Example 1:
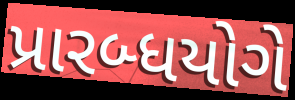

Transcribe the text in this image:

પ્રારબ્ધયોગે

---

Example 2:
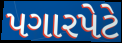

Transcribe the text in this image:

પગારપેટે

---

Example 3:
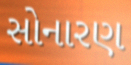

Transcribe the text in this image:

સોનારણ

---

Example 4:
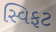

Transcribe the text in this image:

સ્વિફટ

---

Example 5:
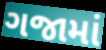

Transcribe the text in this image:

ગજામાં